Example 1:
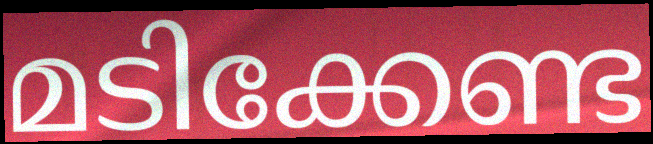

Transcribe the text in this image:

മടിക്കേണ്ട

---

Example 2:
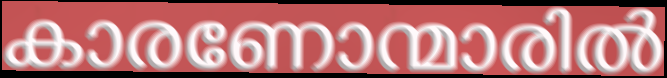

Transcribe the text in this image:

കാരണോന്മാരിൽ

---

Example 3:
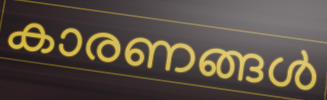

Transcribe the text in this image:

കാരണങ്ങൾ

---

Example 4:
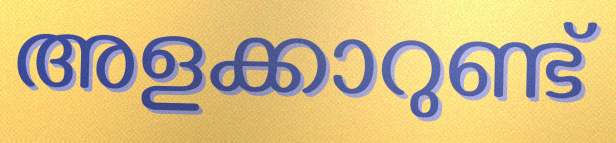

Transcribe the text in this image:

അളക്കാറുണ്ട്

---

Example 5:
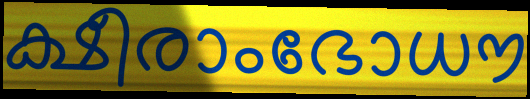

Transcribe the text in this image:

ക്ഷീരാംഭോധൗ